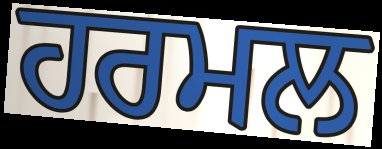
ਹਰਮਲ